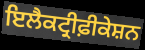
ਇਲੈਕਟ੍ਰੀਫ਼ੀਕੇਸ਼ਨ